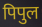
पिपुल